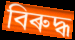
বিৰুদ্ধ